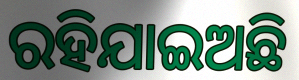
ରହିଯାଇଅଛି